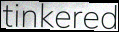
tinkered